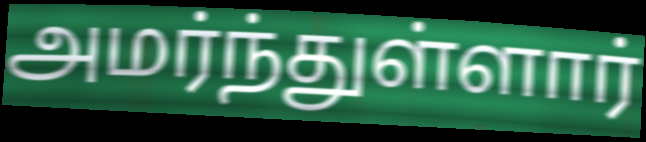
அமர்ந்துள்ளார்